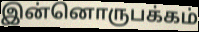
இன்னொருபக்கம்